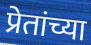
प्रेतांच्या